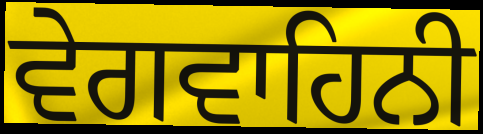
ਵੇਗਵਾਹਿਨੀ